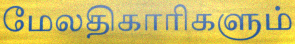
மேலதிகாரிகளும்